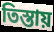
তিস্তায়